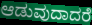
ಆಡುವುದಾದರೆ